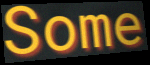
Some